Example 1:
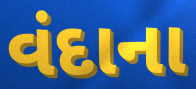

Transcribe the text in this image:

વંદાના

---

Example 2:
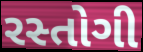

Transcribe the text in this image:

રસ્તોગી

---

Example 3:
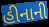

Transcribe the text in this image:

હીનાની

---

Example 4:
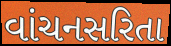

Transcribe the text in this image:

વાંચનસરિતા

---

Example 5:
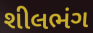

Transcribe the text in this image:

શીલભંગ